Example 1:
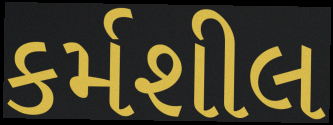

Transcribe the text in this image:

કર્મશીલ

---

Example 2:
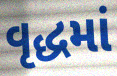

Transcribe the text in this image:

વૃદ્ધમાં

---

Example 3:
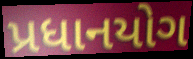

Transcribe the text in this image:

પ્રધાનયોગ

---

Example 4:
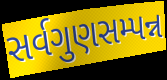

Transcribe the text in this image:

સર્વગુણસમ્પન્ન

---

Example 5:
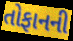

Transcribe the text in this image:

તોફાનની